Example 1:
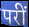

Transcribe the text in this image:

परीं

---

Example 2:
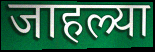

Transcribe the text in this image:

जाहल्या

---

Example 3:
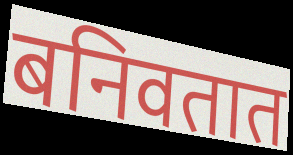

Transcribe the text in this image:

बनिवतात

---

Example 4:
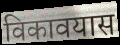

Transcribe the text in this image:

विकावयास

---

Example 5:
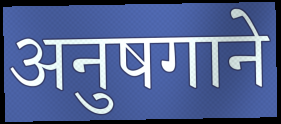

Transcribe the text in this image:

अनुषगाने